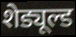
शेड्यूल्ड